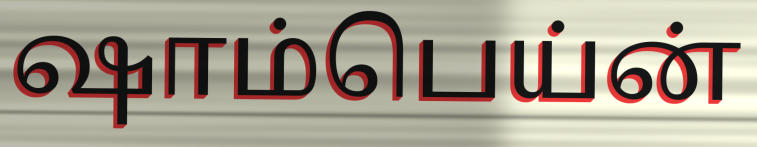
ஷாம்பெய்ன்